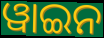
ୱାଇନ